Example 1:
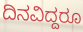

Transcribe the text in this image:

ದಿನವಿದ್ದರೂ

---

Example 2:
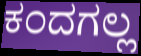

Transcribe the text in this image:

ಕಂದಗಲ್ಲ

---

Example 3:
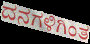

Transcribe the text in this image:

ದನಗಳಿಗಿಂತ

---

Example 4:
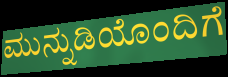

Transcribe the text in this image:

ಮುನ್ನುಡಿಯೊಂದಿಗೆ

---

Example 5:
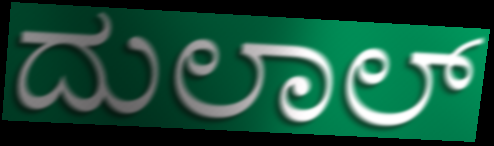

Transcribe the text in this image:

ದುಲಾಲ್